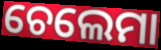
ଚେଲେମା